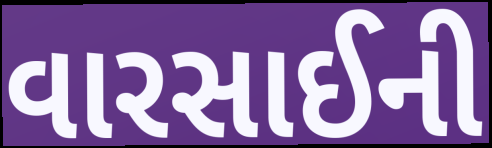
વારસાઈની